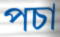
পচা